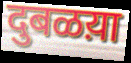
दुबळय़ा